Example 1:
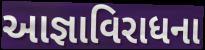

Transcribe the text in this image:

આજ્ઞાવિરાધના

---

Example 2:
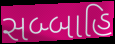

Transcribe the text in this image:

સબ્બાહિ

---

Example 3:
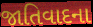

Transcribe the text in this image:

જાતિવાદના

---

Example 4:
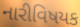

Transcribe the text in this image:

નારીવિષયક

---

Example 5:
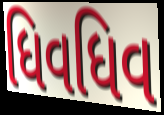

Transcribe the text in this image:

ધિવધિવ